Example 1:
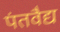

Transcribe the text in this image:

पंतवैद्य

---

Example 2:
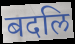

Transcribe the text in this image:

बदलि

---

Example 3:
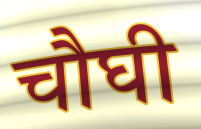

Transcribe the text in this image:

चौघी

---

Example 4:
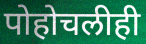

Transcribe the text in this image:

पोहोचलीही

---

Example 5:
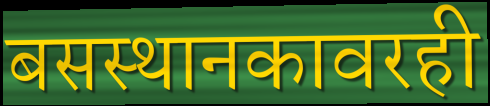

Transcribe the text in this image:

बसस्थानकावरही